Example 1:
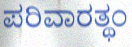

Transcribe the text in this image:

ಪರಿವಾರತ್ಥಂ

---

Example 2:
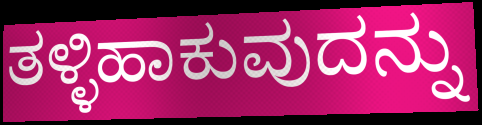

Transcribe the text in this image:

ತಳ್ಳಿಹಾಕುವುದನ್ನು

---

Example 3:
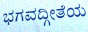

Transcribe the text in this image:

ಭಗವದ್ಗೀತೆಯ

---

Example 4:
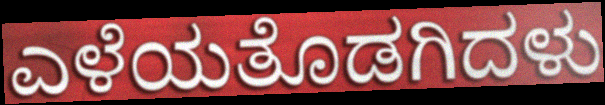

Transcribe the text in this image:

ಎಳೆಯತೊಡಗಿದಳು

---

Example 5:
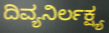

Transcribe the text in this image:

ದಿವ್ಯನಿರ್ಲಕ್ಷ್ಯ